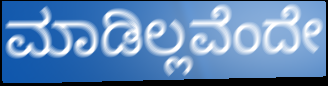
ಮಾಡಿಲ್ಲವೆಂದೇ